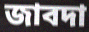
জাবদা